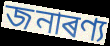
জনাৰণ্য